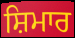
ਸ਼ਿਮਾਰ